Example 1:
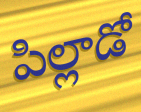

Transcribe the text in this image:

పిల్లాడో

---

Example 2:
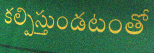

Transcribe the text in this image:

కల్పిస్తుండటంతో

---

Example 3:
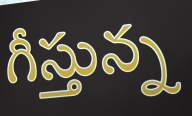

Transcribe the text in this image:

గీస్తున్న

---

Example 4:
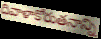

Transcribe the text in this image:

దివాళాకోరుతనాన్ని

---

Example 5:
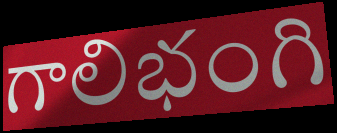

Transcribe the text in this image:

గాలిభంగి